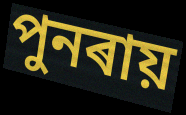
পুনৰায়